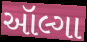
ઑલ્ગા